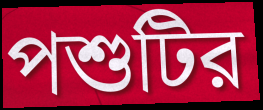
পশুটির